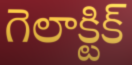
గెలాక్టిక్